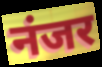
नंजर